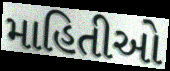
માહિતીઓ